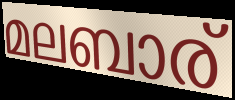
മലബാര്